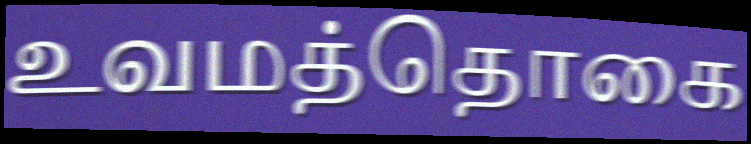
உவமத்தொகை